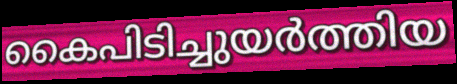
കൈപിടിച്ചുയർത്തിയ